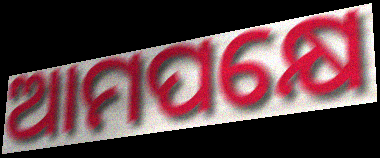
ଆମପକ୍ଷେ